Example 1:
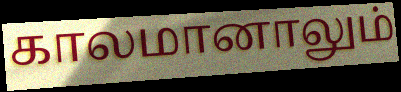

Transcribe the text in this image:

காலமானாலும்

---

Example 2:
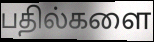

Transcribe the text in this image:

பதில்களை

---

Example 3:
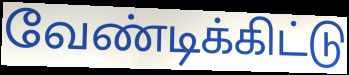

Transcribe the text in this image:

வேண்டிக்கிட்டு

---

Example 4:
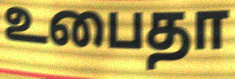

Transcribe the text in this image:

உபைதா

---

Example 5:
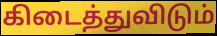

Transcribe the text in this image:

கிடைத்துவிடும்